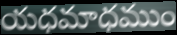
యధమాధముం